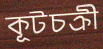
কূটচক্রী